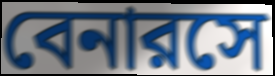
বেনারসে